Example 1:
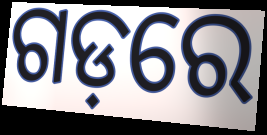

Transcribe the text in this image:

ଗଡ଼ରେ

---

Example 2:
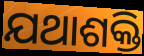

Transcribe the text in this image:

ଯଥାଶକ୍ତି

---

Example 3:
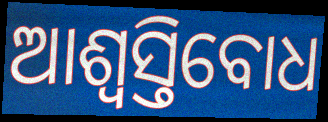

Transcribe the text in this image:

ଆଶ୍ଵସ୍ତିବୋଧ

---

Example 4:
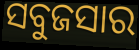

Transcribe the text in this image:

ସବୁଜସାର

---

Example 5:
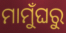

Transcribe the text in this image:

ମାମୁଁଘରୁ